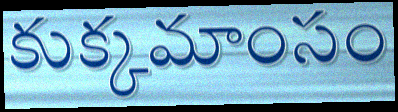
కుక్కమాంసం